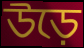
উড়ে